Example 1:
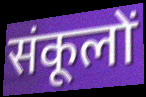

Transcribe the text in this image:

संकूलों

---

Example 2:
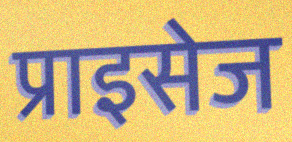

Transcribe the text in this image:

प्राइसेज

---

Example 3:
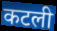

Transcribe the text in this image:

कटली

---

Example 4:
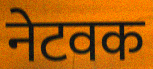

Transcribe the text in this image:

नेटवक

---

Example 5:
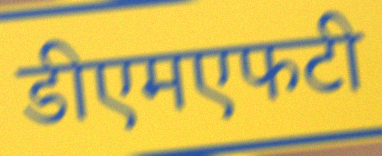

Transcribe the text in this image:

डीएमएफटी